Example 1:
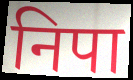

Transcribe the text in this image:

निपा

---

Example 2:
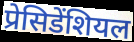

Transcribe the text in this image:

प्रेसिडेंशियल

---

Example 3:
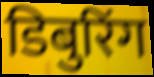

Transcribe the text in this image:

डिबुरिंग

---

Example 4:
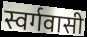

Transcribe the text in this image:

स्‍वर्गवासी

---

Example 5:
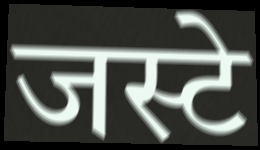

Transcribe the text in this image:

जस्टे